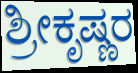
ಶ್ರೀಕೃಷ್ಣರ